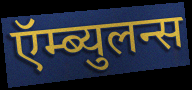
ऍम्ब्युलन्स